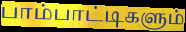
பாம்பாட்டிகளும்